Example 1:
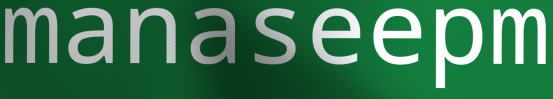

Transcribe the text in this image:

manaseepm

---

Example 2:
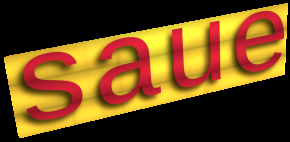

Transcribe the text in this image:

saue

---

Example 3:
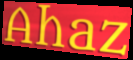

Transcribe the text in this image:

Ahaz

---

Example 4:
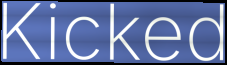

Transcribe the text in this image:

Kicked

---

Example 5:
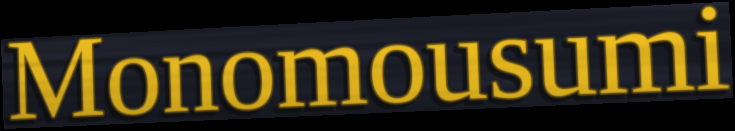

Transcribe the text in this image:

Monomousumi